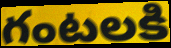
గంటలకి